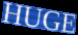
HUGE